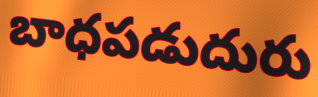
బాధపడుదురు